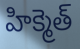
హిక్మెత్